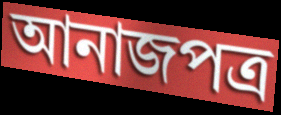
আনাজপত্র